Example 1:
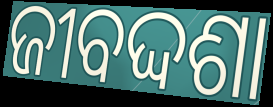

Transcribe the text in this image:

ଜୀବଦ୍ଦଶା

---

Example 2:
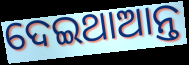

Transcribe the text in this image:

ଦେଇଥାଆନ୍ତ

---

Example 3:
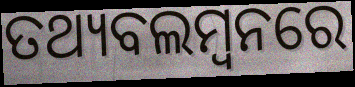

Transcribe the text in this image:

ତଥ୍ୟବଲମ୍ବନରେ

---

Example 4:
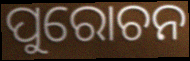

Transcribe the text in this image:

ପୁରୋଚନ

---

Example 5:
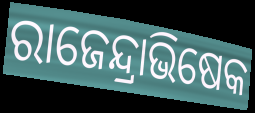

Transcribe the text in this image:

ରାଜେନ୍ଦ୍ରାଭିଷେକ